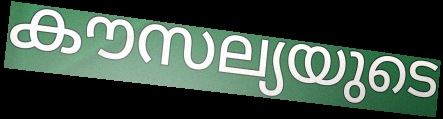
കൗസല്യയുടെ